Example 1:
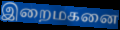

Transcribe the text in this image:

இறைமகனை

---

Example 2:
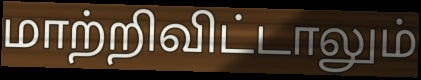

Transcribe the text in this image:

மாற்றிவிட்டாலும்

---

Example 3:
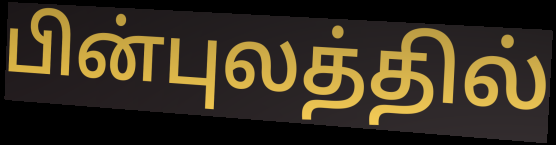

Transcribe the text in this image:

பின்புலத்தில்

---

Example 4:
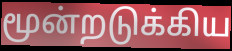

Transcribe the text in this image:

மூன்றடுக்கிய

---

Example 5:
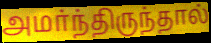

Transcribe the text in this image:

அமர்ந்திருந்தால்